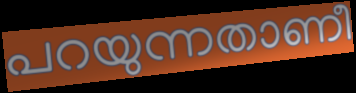
പറയുന്നതാണീ